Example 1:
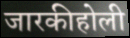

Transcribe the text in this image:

जारकीहोली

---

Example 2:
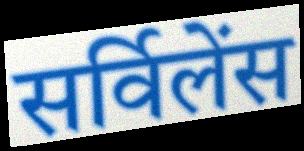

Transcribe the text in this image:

सर्विलेंस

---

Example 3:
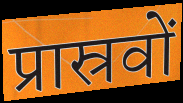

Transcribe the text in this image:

प्रास्रवों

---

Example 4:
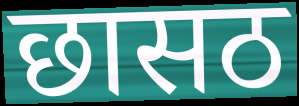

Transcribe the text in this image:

छासठ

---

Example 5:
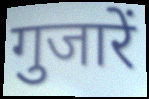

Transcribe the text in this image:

गुजारें